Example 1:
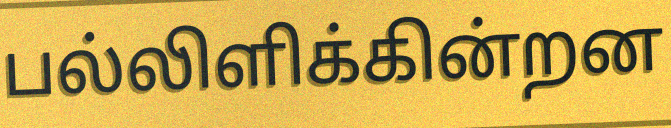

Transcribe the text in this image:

பல்லிளிக்கின்றன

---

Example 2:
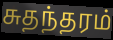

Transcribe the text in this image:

சுதந்தரம்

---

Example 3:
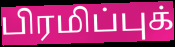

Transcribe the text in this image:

பிரமிப்புக்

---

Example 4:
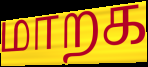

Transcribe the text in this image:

மாறக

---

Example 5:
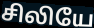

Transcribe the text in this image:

சிலியே